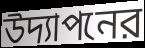
উদ্যাপনের